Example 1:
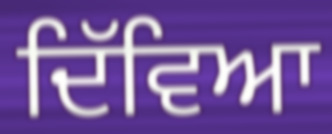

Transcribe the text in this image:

ਦਿੱਵਿਆ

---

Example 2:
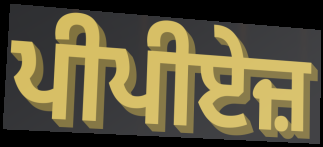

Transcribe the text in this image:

ਪੀਪੀਏਜ਼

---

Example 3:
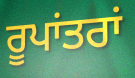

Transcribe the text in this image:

ਰੂਪਾਂਤਰਾਂ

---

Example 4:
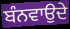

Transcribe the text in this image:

ਬੰਨਵਾਉਦੇ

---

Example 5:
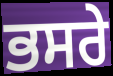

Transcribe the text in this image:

ਭਸਰੇ